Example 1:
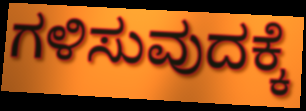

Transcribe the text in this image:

ಗಳಿಸುವುದಕ್ಕೆ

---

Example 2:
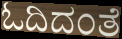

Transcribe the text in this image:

ಓದಿದಂತೆ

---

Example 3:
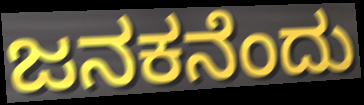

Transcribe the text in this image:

ಜನಕನೆಂದು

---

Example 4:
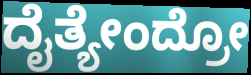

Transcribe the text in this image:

ದೈತ್ಯೇಂದ್ರೋ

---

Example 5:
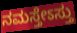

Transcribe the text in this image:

ನಮಸ್ತೇಽಸ್ತು